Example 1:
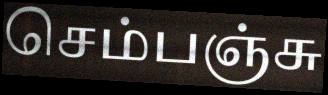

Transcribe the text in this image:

செம்பஞ்சு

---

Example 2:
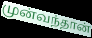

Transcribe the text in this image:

முன்வந்தான்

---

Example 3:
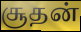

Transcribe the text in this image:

சூதன்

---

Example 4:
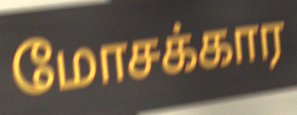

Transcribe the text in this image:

மோசக்கார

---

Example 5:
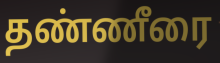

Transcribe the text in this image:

தண்ணீரை